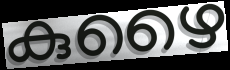
കുഴൈ